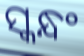
ସ୍କନ୍ଧଂ